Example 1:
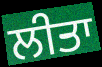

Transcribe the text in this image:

ਲੀਤਾ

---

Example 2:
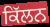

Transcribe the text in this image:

ਕਿੱਲਨ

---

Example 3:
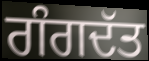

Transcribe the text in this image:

ਗੰਗਦੱਤ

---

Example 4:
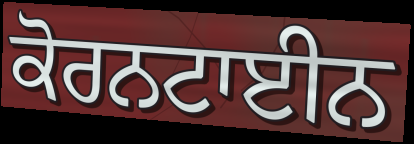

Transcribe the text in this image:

ਕੋਰਨਟਾਈਨ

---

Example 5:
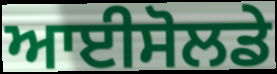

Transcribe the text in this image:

ਆਈਸੋਲਡੇ